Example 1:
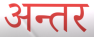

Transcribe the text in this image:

अन्तर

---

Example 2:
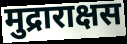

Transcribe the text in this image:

मुद्राराक्षस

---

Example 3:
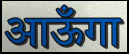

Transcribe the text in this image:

आऊँगा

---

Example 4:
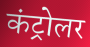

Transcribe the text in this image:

कंट्रोलर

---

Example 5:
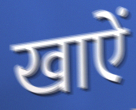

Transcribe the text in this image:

खाऐं